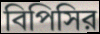
বিপিসির